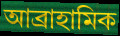
আব্রাহামিক